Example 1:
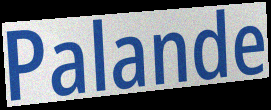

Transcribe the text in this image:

Palande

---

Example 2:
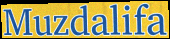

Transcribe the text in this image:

Muzdalifa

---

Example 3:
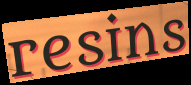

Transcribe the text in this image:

resins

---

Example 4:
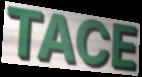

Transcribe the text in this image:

TACE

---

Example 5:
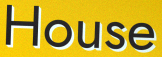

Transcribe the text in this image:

House